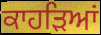
ਕਾਹੜਿਆਂ